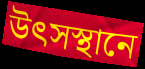
উৎসস্থানে